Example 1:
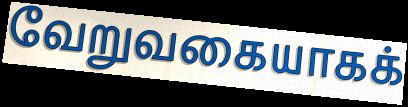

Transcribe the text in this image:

வேறுவகையாகக்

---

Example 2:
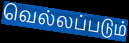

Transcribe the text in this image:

வெல்லப்படும்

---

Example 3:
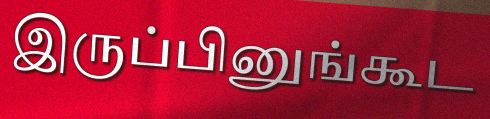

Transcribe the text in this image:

இருப்பினுங்கூட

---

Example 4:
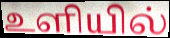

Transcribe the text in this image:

உளியில்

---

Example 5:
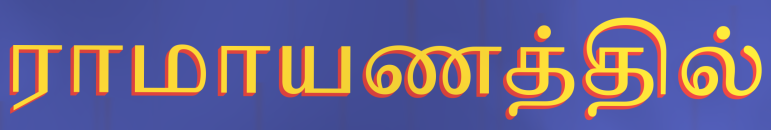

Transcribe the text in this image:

ராமாயணத்தில்